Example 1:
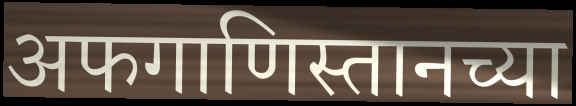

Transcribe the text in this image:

अफगाणिस्तानच्या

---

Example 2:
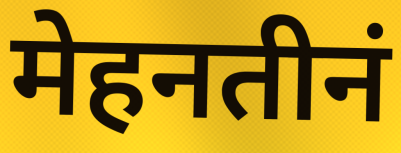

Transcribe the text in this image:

मेहनतीनं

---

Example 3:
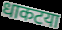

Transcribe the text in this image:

धाकटया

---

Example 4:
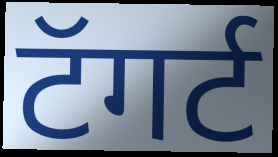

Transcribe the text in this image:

टॅगर्ट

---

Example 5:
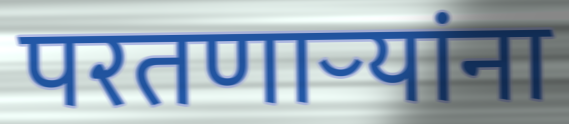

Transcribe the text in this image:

परतणाऱ्यांना